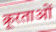
क्रूरताओं